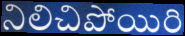
నిలిచిపోయిరి